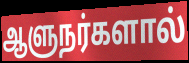
ஆளுநர்களால்